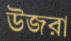
উজরা